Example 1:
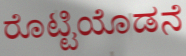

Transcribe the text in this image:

ರೊಟ್ಟಿಯೊಡನೆ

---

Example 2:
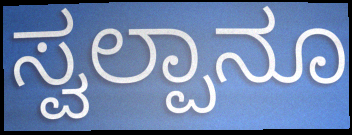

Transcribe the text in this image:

ಸ್ವಲ್ಪಾನೂ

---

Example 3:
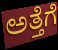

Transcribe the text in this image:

ಅತ್ತೆಗೆ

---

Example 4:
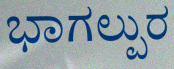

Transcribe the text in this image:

ಭಾಗಲ್ಪುರ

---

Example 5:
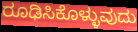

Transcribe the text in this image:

ರೂಢಿಸಿಕೊಳ್ಳುವುದು